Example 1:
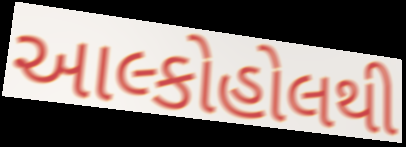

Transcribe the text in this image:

આલ્કોહોલથી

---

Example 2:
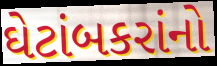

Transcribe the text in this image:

ઘેટાંબકરાંનો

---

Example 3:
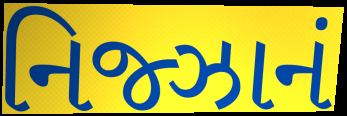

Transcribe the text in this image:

નિજ્ઝાનં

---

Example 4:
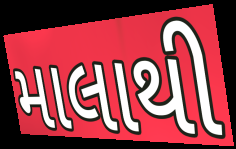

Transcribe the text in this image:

માલાથી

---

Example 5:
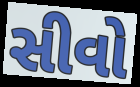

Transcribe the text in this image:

સીવો